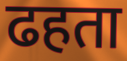
ढहता